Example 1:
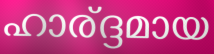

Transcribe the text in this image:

ഹാര്ദ്ദമായ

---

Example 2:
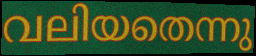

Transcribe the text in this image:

വലിയതെന്നു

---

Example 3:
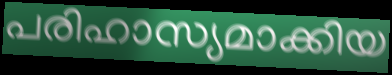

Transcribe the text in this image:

പരിഹാസ്യമാക്കിയ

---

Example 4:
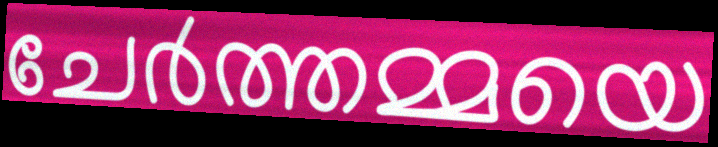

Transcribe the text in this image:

ചേർത്തമ്മയെ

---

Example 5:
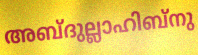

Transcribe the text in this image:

അബ്ദുല്ലാഹിബ്നു